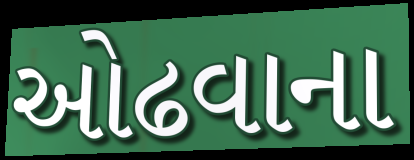
ઓઢવાના